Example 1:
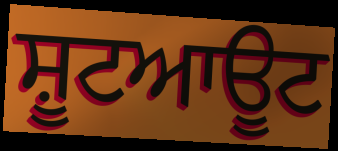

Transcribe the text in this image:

ਸ਼ੂਟਆਊਟ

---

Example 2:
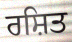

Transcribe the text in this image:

ਰਸ਼ਿਤ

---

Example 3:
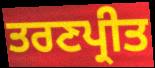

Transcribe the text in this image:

ਤਰਣਪ੍ਰੀਤ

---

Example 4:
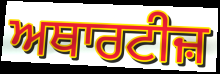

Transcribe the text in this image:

ਅਥਾਰਟੀਜ਼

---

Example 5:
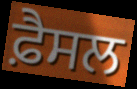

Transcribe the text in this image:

ਫ਼ੈਸਲ